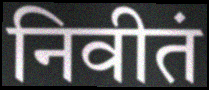
निवीतं